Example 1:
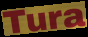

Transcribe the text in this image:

Tura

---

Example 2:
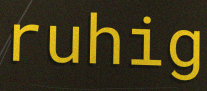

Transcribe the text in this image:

ruhig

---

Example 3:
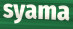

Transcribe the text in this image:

syama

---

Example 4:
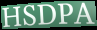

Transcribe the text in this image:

HSDPA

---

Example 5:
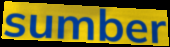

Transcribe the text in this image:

sumber